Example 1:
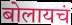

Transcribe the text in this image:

बोलायचं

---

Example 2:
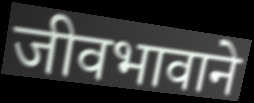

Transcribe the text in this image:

जीवभावाने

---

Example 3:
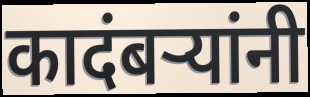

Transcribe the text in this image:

कादंबऱ्यांनी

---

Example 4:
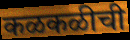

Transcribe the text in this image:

कळकळीची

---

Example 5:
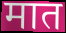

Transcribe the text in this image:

मात